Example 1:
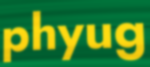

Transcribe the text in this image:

phyug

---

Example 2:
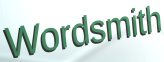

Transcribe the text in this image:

Wordsmith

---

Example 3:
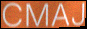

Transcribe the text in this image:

CMAJ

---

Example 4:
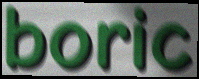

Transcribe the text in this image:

boric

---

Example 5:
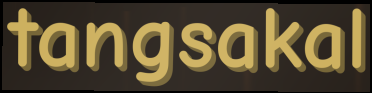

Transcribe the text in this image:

tangsakal